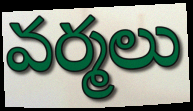
వర్మలు